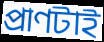
প্রাণটাই